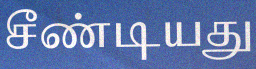
சீண்டியது